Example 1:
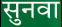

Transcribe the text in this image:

सुनवा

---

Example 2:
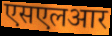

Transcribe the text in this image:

एसएलआर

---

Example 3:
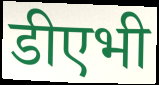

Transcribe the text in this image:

डीएभी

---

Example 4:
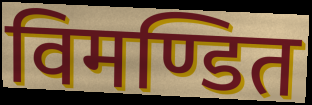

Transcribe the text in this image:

विमण्डित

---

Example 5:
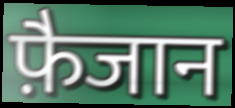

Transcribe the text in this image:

फ़ैजान